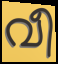
വീ